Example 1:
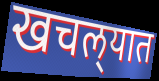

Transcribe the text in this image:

खचल्यात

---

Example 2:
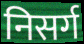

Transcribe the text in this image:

निसर्ग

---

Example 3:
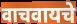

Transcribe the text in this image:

वाचवायचे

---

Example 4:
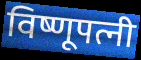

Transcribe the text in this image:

विष्णूपत्नी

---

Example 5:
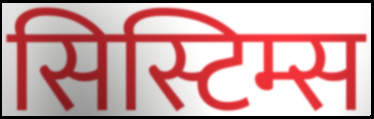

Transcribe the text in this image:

सिस्टिम्स